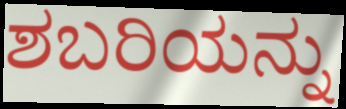
ಶಬರಿಯನ್ನು